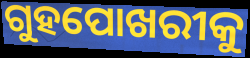
ଗୁହପୋଖରୀକୁ